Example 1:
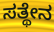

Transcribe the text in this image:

ಸತ್ಥೇನ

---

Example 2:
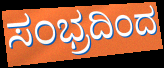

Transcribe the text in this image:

ಸಂಭ್ರದಿಂದ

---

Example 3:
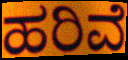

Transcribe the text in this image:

ಹರಿವೆ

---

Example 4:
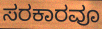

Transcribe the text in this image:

ಸರಕಾರವೂ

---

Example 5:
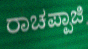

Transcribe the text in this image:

ರಾಚಪ್ಪಾಜಿ